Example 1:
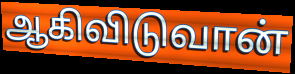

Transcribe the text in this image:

ஆகிவிடுவான்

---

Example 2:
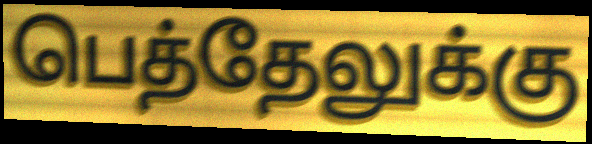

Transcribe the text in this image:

பெத்தேலுக்கு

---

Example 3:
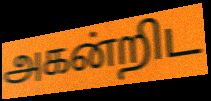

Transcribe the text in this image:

அகன்றிட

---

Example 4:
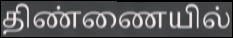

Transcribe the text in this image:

திண்ணையில்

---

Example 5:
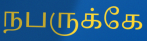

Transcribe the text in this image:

நபருக்கே